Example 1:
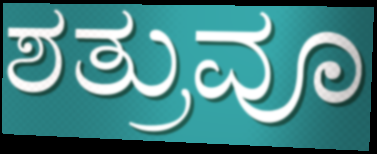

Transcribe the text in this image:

ಶತ್ರುವೂ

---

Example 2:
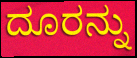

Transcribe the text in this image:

ದೂರನ್ನು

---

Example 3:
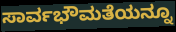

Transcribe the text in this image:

ಸಾರ್ವಭೌಮತೆಯನ್ನೂ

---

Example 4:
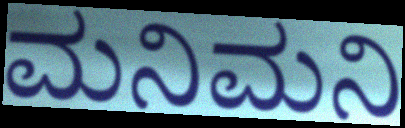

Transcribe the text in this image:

ಮನಿಮನಿ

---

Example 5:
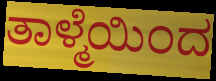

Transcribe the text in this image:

ತಾಳ್ಮೆಯಿಂದ